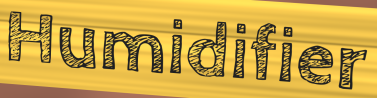
Humidifier